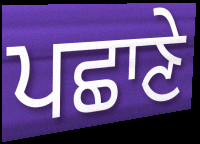
ਪਛਾਣੇ